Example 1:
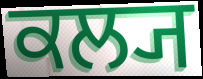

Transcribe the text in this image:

ਕਲ੍ਯ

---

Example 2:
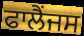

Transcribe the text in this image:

ਫਾਲੈਂਜਸ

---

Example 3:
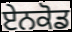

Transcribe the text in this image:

ਏਨਕੋਡ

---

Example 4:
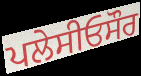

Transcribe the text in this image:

ਪਲੇਸੀਓਸੌਰ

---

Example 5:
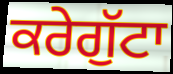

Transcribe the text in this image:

ਕਰੇਗੁੱਟਾ